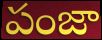
పంజా